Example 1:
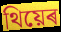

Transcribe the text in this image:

থিয়েৰ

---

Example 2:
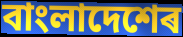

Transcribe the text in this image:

বাংলাদেশেৰ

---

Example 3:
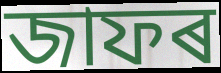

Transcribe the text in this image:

জাফৰ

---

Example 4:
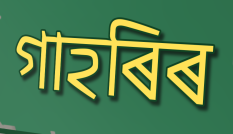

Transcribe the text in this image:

গাহৰিৰ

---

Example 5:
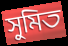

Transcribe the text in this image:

সুমিত